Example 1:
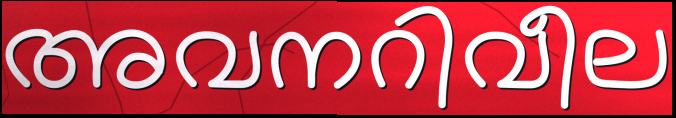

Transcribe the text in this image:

അവനറിവീല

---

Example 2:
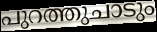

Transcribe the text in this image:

പുറത്തുചാടും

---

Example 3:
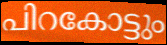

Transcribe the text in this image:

പിറകോട്ടും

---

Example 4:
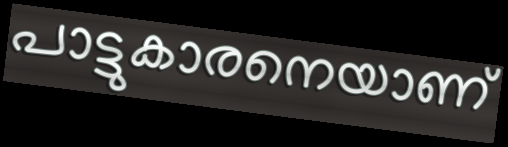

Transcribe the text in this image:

പാട്ടുകാരനെയാണ്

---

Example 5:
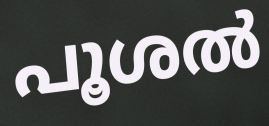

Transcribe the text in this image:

പൂശൽ